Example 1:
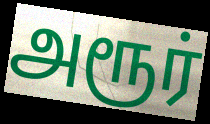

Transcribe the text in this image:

அரூர்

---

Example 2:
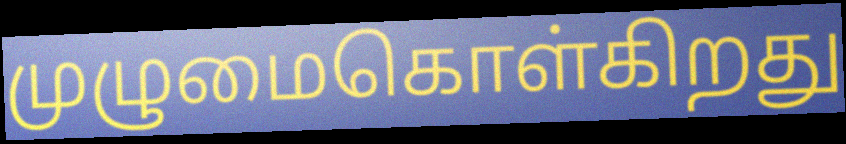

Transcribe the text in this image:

முழுமைகொள்கிறது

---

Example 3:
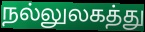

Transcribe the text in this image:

நல்லுலகத்து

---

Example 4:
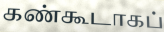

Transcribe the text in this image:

கண்கூடாகப்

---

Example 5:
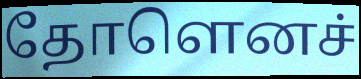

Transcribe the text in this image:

தோளெனச்